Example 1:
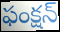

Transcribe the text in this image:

ఫంక్షన్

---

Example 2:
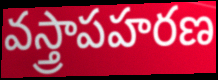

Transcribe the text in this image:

వస్త్రాపహరణ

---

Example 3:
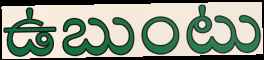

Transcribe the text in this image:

ఉబుంటు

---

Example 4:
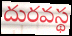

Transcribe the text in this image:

దురవస్థ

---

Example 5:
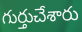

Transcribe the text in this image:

గుర్తుచేశారు